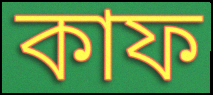
কাফ